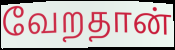
வேறதான்